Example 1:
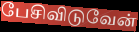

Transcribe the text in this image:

பேசிவிடுவேன்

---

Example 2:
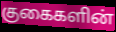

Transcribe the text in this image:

குகைகளின்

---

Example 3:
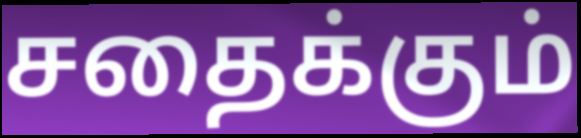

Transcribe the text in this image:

சதைக்கும்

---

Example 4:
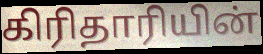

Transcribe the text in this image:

கிரிதாரியின்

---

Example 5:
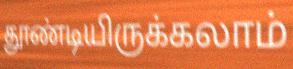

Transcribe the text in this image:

தூண்டியிருக்கலாம்